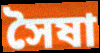
সৈষা